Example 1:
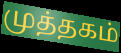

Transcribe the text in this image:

முத்தகம்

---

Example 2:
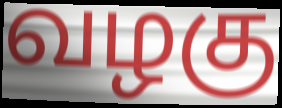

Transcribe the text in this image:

வழகு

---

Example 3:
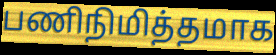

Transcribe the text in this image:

பணிநிமித்தமாக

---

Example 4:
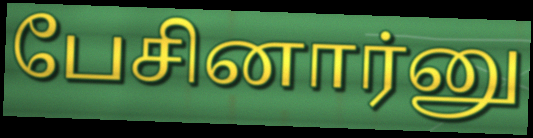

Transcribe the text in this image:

பேசினார்னு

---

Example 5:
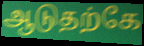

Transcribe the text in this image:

ஆடுதற்கே